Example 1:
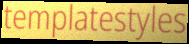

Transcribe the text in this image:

templatestyles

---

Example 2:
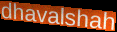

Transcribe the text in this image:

dhavalshah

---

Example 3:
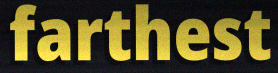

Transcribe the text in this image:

farthest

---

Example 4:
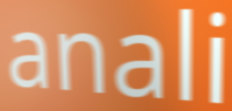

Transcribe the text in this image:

anali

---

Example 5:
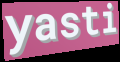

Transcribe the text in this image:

yasti